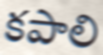
కపాలి